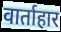
वार्ताहार